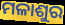
ମଳାଶୁର